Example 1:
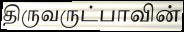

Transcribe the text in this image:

திருவருட்பாவின்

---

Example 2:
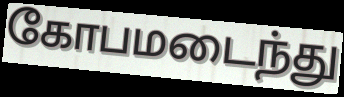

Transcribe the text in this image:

கோபமடைந்து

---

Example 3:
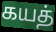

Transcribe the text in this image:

கயத்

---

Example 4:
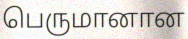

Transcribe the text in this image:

பெருமானான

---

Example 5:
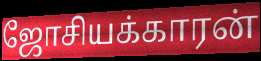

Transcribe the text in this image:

ஜோசியக்காரன்